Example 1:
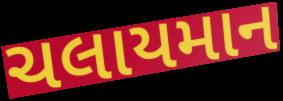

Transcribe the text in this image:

ચલાયમાન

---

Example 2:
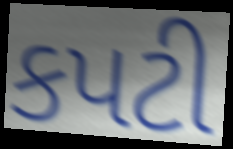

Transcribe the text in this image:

કપટી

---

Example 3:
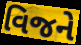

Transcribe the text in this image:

વિજને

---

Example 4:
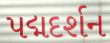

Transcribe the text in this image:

પદ્મદર્શન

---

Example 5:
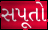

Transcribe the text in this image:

સપૂતો